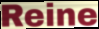
Reine